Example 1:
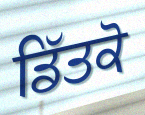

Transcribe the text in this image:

ਡਿੱਤਕੋ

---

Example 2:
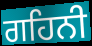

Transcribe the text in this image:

ਗਹਿਨੀ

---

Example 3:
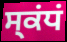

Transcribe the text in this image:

ਸ੍ਕਂਧਂ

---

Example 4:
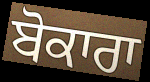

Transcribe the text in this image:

ਬੋਕਾਰਾ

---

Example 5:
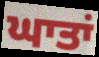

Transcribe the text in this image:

ਘਾਤਾਂ